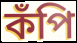
কঁপি